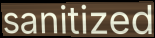
sanitized